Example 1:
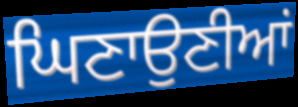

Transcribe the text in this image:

ਘਿਣਾਉਣੀਆਂ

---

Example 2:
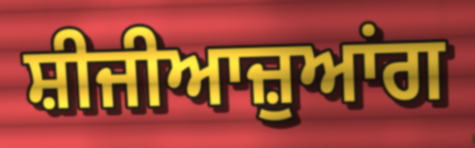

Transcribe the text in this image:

ਸ਼ੀਜੀਆਜ਼ੁਆਂਗ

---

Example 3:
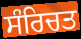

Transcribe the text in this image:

ਸੰਰਿਚਤ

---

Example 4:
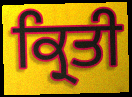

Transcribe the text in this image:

ਕ੍ਰਿਤੀ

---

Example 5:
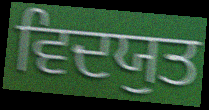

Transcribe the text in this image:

ਵਿਦਯੁਤ